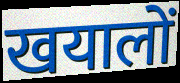
खयालों